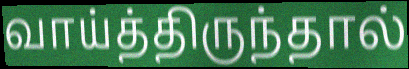
வாய்த்திருந்தால்